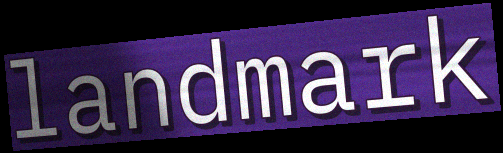
landmark